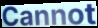
Cannot